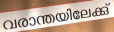
വരാന്തയിലേക്കു്